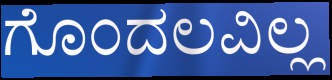
ಗೊಂದಲವಿಲ್ಲ